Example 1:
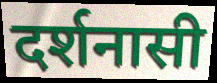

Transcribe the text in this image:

दर्शनासी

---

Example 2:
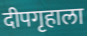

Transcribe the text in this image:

दीपगृहाला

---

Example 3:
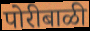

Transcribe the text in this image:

पोरीबाळी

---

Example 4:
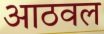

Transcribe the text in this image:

आठवल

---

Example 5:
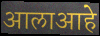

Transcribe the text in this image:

आलाआहे